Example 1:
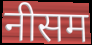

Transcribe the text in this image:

नीसम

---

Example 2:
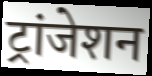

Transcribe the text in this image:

ट्रांजेशन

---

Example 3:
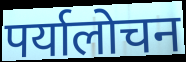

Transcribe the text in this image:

पर्यालोचन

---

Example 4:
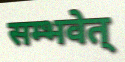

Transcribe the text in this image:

सम्भवेत्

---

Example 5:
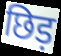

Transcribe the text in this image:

छिड़